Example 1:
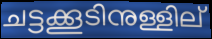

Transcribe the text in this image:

ചട്ടക്കൂടിനുള്ളില്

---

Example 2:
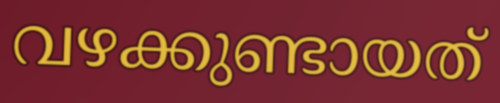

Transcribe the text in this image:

വഴക്കുണ്ടായത്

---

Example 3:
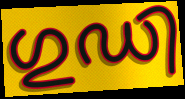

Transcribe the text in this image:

ഗുഡി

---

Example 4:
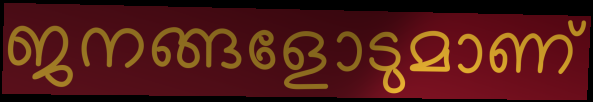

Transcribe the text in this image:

ജനങ്ങളോടുമാണ്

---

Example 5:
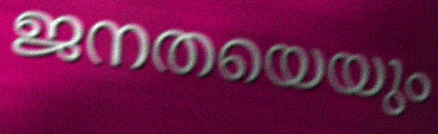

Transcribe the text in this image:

ജനതയെയും